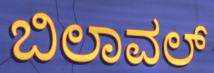
ಬಿಲಾವಲ್